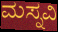
ಮಸ್ನವಿ